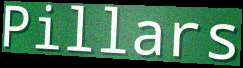
Pillars